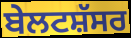
ਬੇਲਟਸ਼ੱਸਰ